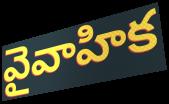
వైవాహిక